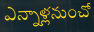
ఎన్నాళ్లనుంచో